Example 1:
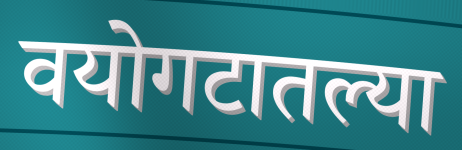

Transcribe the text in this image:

वयोगटातल्या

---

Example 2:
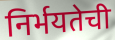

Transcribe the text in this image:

निर्भयतेची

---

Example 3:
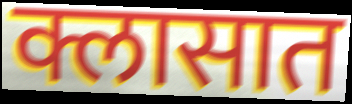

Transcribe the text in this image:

क्लासात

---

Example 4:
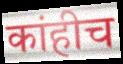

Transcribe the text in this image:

कांहीच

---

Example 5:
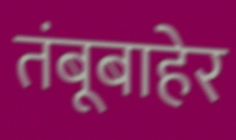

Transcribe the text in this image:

तंबूबाहेर